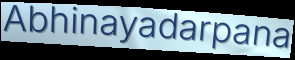
Abhinayadarpana